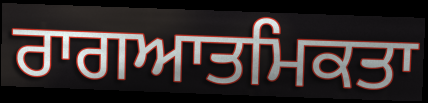
ਰਾਗਆਤਮਿਕਤਾ